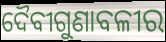
ଦୈବୀଗୁଣାବଳୀର